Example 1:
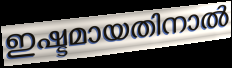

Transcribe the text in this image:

ഇഷ്ടമായതിനാൽ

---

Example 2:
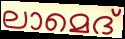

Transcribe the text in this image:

ലാമെദ്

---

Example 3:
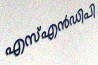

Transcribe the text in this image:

എസ്എൻഡിപി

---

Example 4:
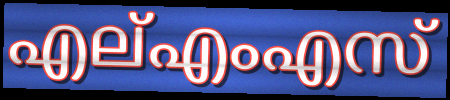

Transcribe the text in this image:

എല്എംഎസ്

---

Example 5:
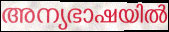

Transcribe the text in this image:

അന്യഭാഷയിൽ